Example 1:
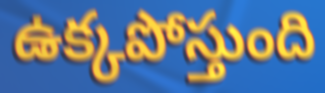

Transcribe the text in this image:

ఉక్కపోస్తుంది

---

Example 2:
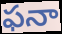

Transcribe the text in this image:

ఫనా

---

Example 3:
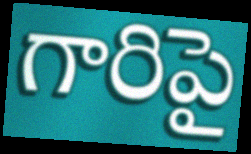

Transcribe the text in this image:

గారిపై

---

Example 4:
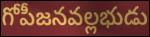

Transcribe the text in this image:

గోపీజనవల్లభుడు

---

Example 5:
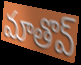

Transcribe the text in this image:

మాతొవ్